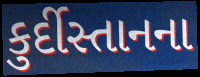
કુર્દીસ્તાનના